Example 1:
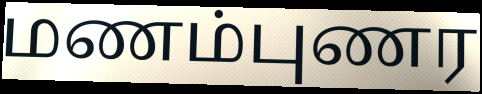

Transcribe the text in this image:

மணம்புணர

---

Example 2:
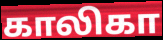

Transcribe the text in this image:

காலிகா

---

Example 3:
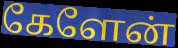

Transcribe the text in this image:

கேளேன்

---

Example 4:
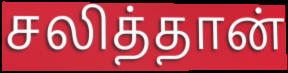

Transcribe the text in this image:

சலித்தான்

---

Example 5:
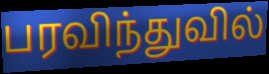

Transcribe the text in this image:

பரவிந்துவில்